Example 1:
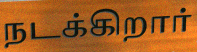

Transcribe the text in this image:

நடக்கிறார்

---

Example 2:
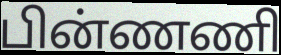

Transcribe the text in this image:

பின்ணணி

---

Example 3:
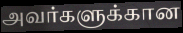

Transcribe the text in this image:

அவர்களுக்கான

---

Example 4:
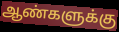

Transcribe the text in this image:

ஆண்களுக்கு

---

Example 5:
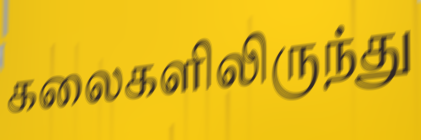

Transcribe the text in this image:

கலைகளிலிருந்து